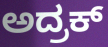
ಅದ್ರಕ್